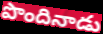
పొందినాడు